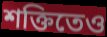
শক্তিতেও